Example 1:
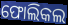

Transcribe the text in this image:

ଫୋଲିକଲ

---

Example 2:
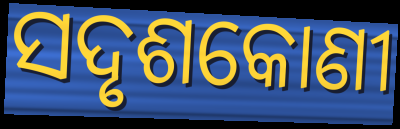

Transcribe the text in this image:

ସଦୃଶକୋଣୀ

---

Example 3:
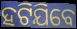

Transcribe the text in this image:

ହଟିଯିବେ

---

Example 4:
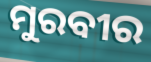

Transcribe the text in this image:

ମୁରବୀର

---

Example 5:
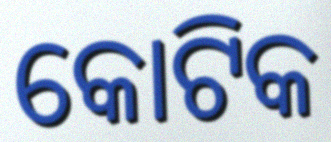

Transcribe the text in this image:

କୋଟିକ